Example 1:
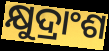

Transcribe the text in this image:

କ୍ଷୁଦ୍ରାଂଶ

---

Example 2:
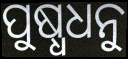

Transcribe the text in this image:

ପୁଷ୍ଧଧନୁ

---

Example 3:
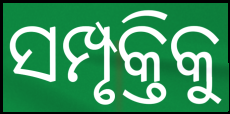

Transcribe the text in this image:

ସମ୍ପୃକ୍ତିକୁ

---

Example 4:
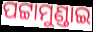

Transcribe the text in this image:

ପଟ୍ଟାମୁଣ୍ଡାଇ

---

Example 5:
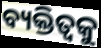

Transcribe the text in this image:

ବ୍ୟକ୍ତିତ୍ୱକୁ